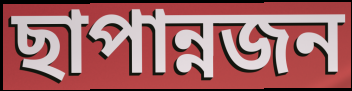
ছাপান্নজন